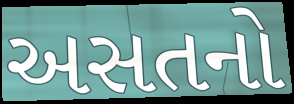
અસતનો